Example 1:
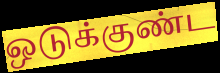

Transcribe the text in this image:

ஒடுக்குண்ட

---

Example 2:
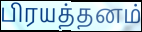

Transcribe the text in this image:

பிரயத்தனம்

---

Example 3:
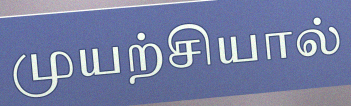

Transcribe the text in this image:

முயற்சியால்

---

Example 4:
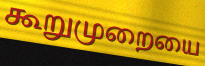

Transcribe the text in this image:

கூறுமுறையை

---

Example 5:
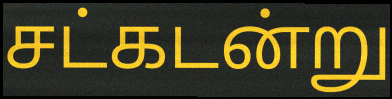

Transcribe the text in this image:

சட்கடன்று